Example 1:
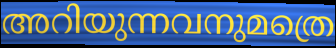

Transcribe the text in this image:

അറിയുന്നവനുമത്രെ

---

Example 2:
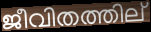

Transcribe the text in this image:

ജീവിതത്തില്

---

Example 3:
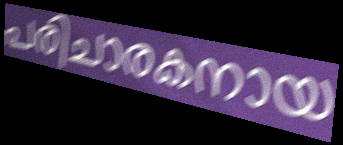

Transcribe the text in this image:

പരിചാരകനായ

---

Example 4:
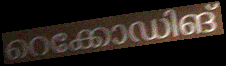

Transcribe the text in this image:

റെക്കോഡിങ്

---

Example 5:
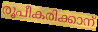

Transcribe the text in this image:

രൂപീകരിക്കാന്